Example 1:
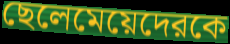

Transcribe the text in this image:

ছেলেমেয়েদেরকে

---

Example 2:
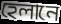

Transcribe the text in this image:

হেলানে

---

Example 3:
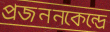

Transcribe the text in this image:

প্রজননকেন্দ্রে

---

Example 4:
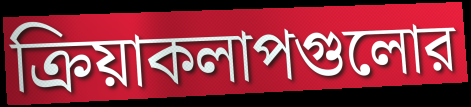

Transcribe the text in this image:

ক্রিয়াকলাপগুলোর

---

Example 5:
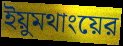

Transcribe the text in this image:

ইয়ুমথাংয়ের